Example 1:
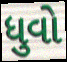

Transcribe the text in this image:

ધુવો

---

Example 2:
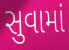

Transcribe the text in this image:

સુવામાં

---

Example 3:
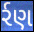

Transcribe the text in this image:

ર્રણ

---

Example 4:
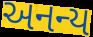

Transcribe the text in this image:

અનન્ય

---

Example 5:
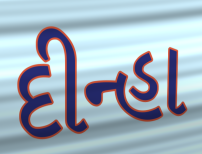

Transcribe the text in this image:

દીન્હા